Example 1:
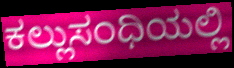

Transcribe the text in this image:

ಕಲ್ಲುಸಂಧಿಯಲ್ಲಿ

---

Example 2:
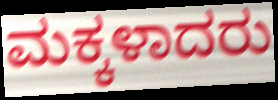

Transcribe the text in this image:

ಮಕ್ಕಳಾದರು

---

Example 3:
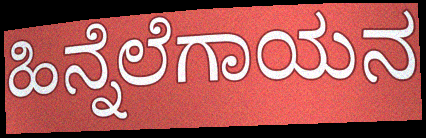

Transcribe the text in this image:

ಹಿನ್ನೆಲೆಗಾಯನ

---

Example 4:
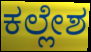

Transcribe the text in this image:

ಕಲ್ಲೇಶ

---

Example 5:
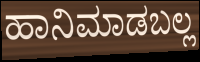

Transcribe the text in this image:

ಹಾನಿಮಾಡಬಲ್ಲ